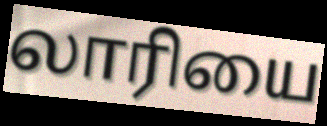
லாரியை